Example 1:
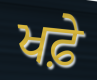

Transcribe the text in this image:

ਖਫ਼ੇ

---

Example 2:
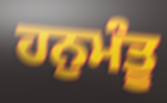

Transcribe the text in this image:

ਹਨੁਮੰਤੂ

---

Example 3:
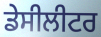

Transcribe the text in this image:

ਡੇਸੀਲੀਟਰ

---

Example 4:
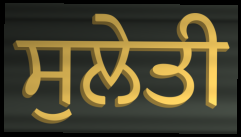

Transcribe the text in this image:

ਸੁਲੇਤੀ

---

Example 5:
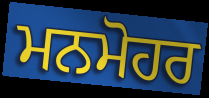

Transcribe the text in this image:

ਮਨਮੋਹਰ